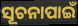
ସୂଚନାପାଇଁ